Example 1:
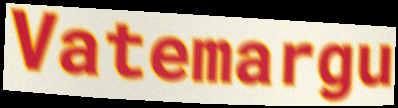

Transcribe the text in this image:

Vatemargu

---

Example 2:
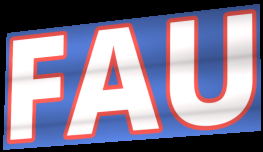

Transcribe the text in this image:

FAU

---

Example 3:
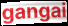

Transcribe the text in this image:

gangai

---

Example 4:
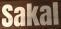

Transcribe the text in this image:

Sakal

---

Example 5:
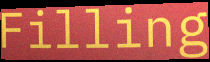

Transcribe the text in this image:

Filling